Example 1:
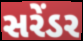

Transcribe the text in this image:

સરેંડર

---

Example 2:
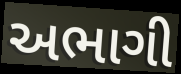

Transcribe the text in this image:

અભાગી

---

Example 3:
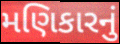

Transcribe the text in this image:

મણિકારનું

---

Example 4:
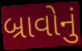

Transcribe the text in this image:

બ્રાવોનું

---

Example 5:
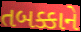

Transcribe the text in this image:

તબક્કાને